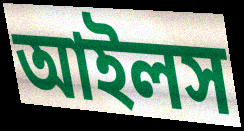
আইলস